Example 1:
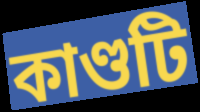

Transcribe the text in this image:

কাণ্ডটি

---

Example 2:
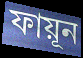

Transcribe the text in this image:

ফায়ূন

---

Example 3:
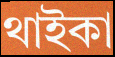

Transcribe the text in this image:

থাইকা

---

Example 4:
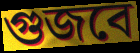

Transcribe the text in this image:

গুজবে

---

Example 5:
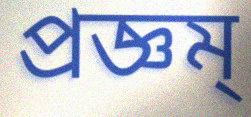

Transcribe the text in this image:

প্রজ্ঞম্